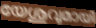
യേശുവുമായി